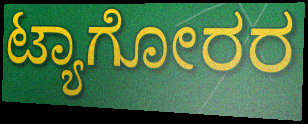
ಟ್ಯಾಗೋರರ